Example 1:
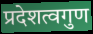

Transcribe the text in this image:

प्रदेशत्वगुण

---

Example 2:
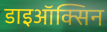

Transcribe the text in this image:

डाइऑक्सिन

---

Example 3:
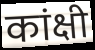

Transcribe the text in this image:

कांक्षी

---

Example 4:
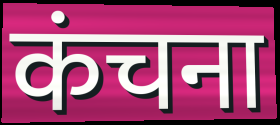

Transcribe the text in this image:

कंचना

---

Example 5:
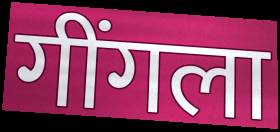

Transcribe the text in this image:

गींगला